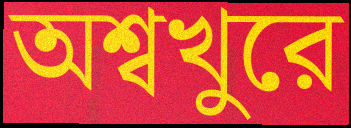
অশ্বখুরে